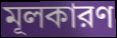
মূলকারণ